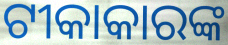
ଟୀକାକାରଙ୍କ